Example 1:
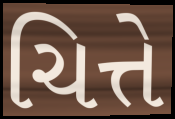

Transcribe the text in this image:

ચિત્તે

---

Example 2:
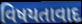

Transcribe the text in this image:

વિષયતાવાદ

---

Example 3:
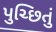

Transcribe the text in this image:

પુચ્છિતું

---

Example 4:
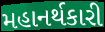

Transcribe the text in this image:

મહાનર્થકારી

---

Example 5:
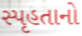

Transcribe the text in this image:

સ્પૃહતાનો